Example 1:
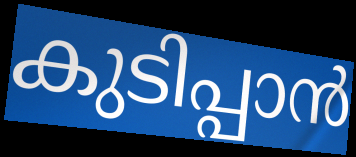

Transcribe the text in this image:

കുടിപ്പാൻ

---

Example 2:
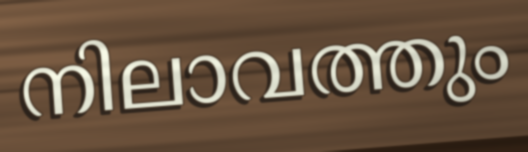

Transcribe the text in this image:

നിലാവത്തും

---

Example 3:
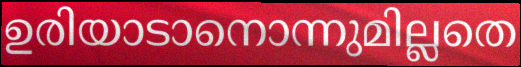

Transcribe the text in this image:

ഉരിയാടാനൊന്നുമില്ലതെ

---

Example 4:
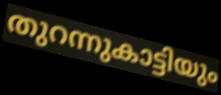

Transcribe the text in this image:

തുറന്നുകാട്ടിയും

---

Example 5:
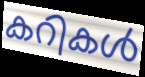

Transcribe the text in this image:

കറികൾ